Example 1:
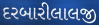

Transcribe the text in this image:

દરબારીલાલજી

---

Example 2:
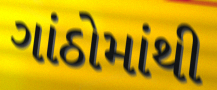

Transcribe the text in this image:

ગાંઠોમાંથી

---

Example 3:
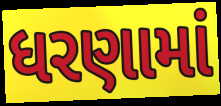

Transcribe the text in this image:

ધરણામાં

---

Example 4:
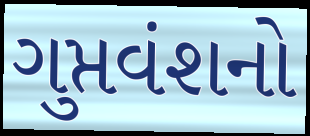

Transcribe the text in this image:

ગુપ્તવંશનો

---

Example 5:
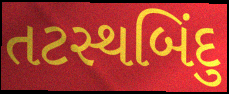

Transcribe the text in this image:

તટસ્થબિંદુ